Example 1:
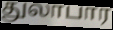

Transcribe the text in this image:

துலாபார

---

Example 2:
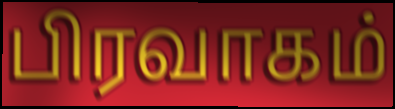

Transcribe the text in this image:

பிரவாகம்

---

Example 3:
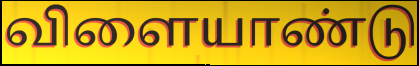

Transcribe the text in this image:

விளையாண்டு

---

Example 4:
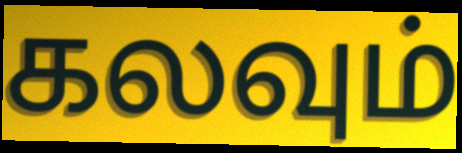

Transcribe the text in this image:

கலவும்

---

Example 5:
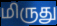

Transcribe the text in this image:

மிருது